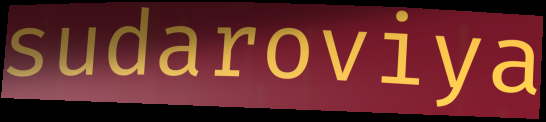
sudaroviya